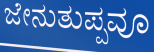
ಜೇನುತುಪ್ಪವೂ